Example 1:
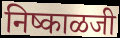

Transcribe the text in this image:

निष्काळजी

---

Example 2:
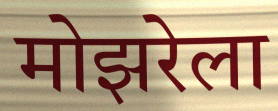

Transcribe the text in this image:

मोझरेला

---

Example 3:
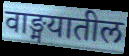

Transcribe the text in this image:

वाङ्मयातील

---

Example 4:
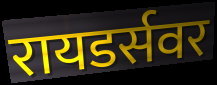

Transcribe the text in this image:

रायडर्सवर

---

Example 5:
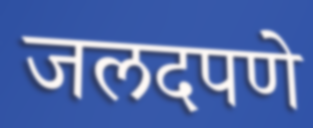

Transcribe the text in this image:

जलदपणे